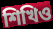
শিখিও